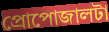
প্রোপোজালটা